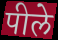
पीले